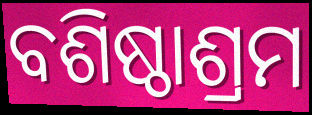
ବଶିଷ୍ଠାଶ୍ରମ